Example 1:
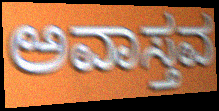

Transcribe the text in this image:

ಅವಾಸ್ತವ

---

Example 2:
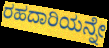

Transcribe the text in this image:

ರಹದಾರಿಯನ್ನೇ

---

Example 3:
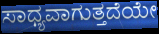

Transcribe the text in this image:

ಸಾಧ್ಯವಾಗುತ್ತದೆಯೇ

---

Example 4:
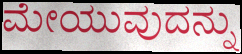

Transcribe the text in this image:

ಮೇಯುವುದನ್ನು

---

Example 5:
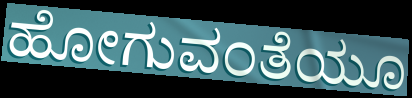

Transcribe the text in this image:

ಹೋಗುವಂತೆಯೂ